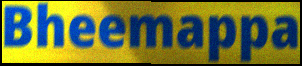
Bheemappa